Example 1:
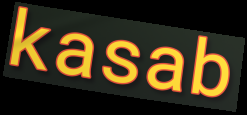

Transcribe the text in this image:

kasab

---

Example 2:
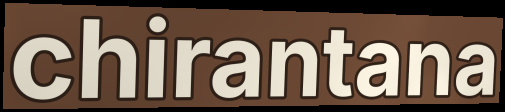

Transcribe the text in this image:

chirantana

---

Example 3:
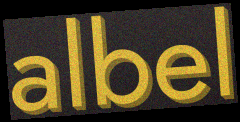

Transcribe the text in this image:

albel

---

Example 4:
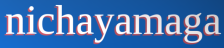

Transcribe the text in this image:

nichayamaga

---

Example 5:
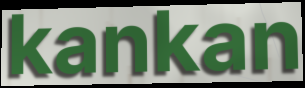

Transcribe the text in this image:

kankan